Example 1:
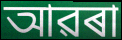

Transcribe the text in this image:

আৱৰা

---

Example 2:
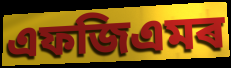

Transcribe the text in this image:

এফজিএমৰ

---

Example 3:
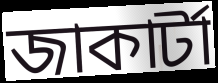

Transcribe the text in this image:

জাকাৰ্টা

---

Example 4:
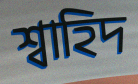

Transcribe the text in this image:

শ্বাহিদ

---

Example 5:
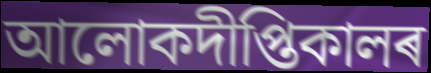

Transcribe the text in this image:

আলোকদীপ্তিকালৰ